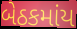
બેઠકમાંય